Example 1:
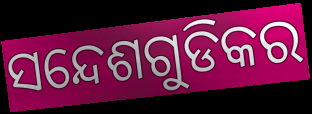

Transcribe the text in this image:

ସନ୍ଦେଶଗୁଡିକର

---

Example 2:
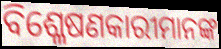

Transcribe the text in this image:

ବିଶ୍ଳେଷଣକାରୀମାନଙ୍କ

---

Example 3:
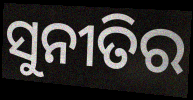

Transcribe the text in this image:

ସୁନୀତିର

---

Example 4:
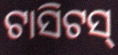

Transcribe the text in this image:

ଟାସିଟସ୍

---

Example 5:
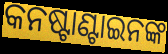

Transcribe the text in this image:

କନଷ୍ଟାଣ୍ଟାଇନଙ୍କ